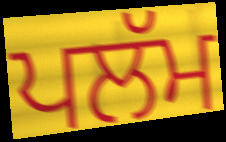
ਪਲੱਮ